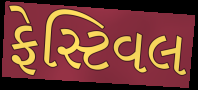
ફેસ્ટિવલ